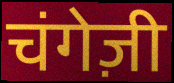
चंगेज़ी